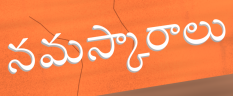
నమస్కారాలు